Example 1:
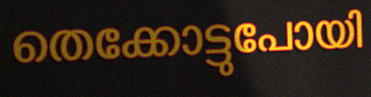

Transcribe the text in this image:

തെക്കോട്ടുപോയി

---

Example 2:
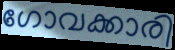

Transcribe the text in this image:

ഗോവക്കാരി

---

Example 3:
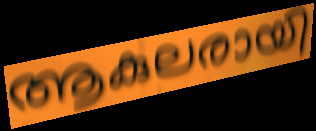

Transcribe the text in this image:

ആകുലരായി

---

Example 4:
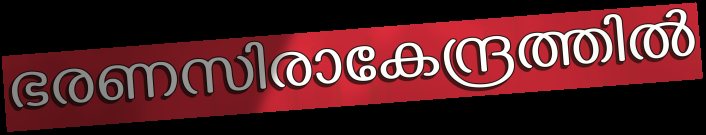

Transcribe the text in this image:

ഭരണസിരാകേന്ദ്രത്തിൽ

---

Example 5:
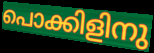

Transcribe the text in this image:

പൊക്കിളിനു